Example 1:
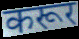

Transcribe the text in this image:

करूर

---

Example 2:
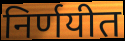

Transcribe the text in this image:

निर्णयीत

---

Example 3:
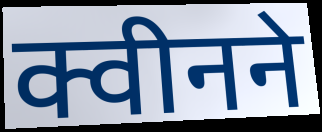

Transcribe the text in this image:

क्वीनने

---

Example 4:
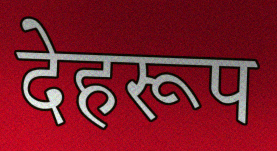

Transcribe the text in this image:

देहरूप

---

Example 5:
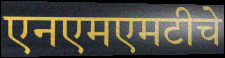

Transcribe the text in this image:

एनएमएमटीचे